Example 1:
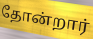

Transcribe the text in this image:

தோன்றார்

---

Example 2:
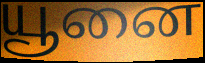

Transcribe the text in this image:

யூனை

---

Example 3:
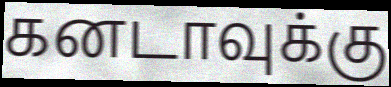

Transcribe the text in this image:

கனடாவுக்கு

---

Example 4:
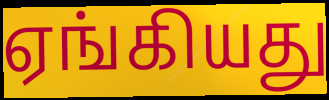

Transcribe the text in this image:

ஏங்கியது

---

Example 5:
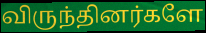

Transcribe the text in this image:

விருந்தினர்களே